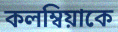
কলম্বিয়াকে